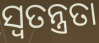
ସ୍ବତନ୍ତ୍ରତା